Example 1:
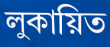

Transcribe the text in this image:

লুকায়িত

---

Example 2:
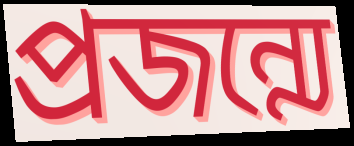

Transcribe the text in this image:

প্রজন্মে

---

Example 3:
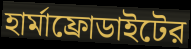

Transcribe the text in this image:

হার্মাফ্রোডাইটের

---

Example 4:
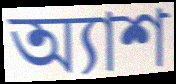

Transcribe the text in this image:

অ্যাশ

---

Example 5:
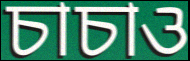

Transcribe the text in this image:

চাচাও